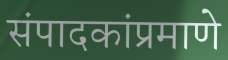
संपादकांप्रमाणे